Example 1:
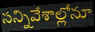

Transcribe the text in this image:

సన్నివేశాల్లోనూ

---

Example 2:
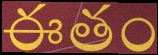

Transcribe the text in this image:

ఈతం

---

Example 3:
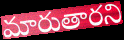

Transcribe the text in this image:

మారుతారని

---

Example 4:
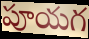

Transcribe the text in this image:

పూయగ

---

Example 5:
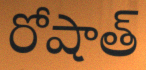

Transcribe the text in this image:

రోషాత్